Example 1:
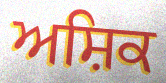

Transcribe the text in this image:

ਅਸ਼ਿਕ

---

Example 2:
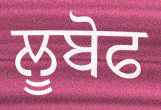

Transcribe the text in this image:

ਲੂਬੋਫ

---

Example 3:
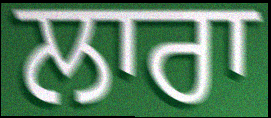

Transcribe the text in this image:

ਲਾਰਾ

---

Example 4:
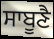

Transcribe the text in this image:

ਸਾਬੂਣੈ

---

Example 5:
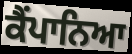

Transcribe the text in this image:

ਕੈਂਪਾਨਿਆ